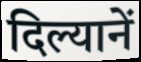
दिल्यानें